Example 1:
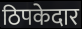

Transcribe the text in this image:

ठिपकेदार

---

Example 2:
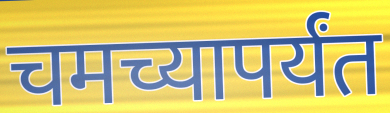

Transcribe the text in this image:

चमच्यापर्यंत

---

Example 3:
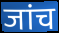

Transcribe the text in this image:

जांच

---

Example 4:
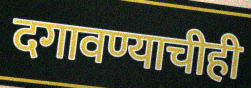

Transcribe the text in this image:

दगावण्याचीही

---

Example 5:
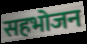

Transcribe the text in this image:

सहभोजन